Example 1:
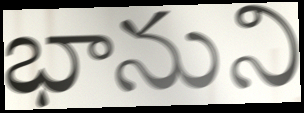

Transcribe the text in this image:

భానుని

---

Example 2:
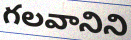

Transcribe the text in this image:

గలవానిని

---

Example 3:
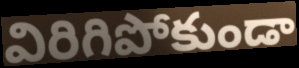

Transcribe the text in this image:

విరిగిపోకుండా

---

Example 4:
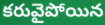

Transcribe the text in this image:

కరువైపోయిన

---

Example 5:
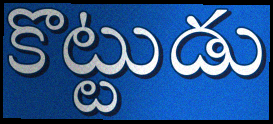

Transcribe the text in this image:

కొట్టుడు